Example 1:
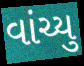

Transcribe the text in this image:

વાંચ્યુ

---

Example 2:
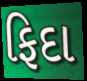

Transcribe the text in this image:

ફિદા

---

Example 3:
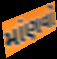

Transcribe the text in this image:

માંણવો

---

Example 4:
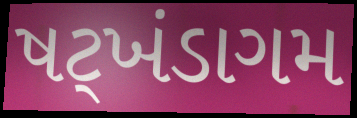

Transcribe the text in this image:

ષટ્ખંડાગમ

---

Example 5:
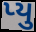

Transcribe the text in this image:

પ્યુ